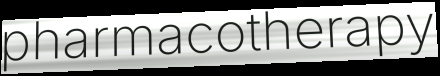
pharmacotherapy